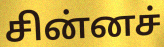
சின்னச்